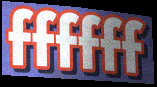
ffffff